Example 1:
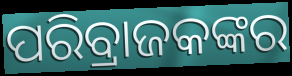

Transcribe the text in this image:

ପରିବ୍ରାଜକଙ୍କର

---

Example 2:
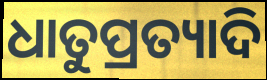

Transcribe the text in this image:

ଧାତୁପ୍ରତ୍ୟାଦି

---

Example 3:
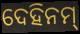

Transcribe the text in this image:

ଦେହିନମ୍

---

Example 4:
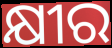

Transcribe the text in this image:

କ୍ଷୀର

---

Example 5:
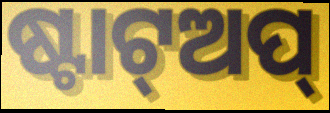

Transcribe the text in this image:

ଷ୍ଟାଟ୍ଅପ୍